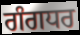
ਗੰਗਧਰ